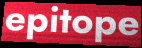
epitope